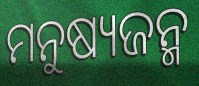
ମନୁଷ୍ୟଜନ୍ମ